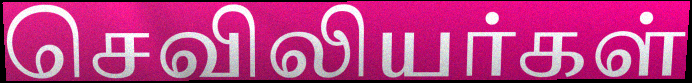
செவிலியர்கள்